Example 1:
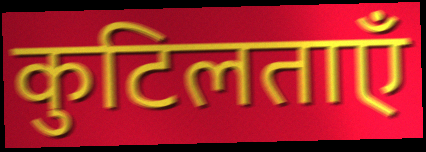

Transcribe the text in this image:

कुटिलताएँ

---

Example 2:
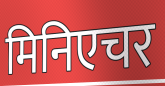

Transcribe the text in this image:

मिनिएचर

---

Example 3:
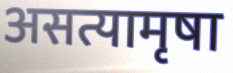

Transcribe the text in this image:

असत्यामृषा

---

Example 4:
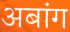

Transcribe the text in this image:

अबांग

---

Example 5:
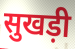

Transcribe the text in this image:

सुखड़ी